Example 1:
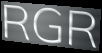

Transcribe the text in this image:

RGR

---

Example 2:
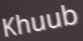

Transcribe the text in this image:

Khuub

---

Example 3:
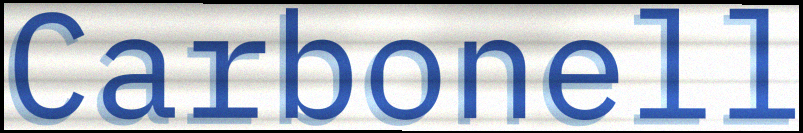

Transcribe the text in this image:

Carbonell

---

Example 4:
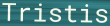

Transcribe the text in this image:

Tristis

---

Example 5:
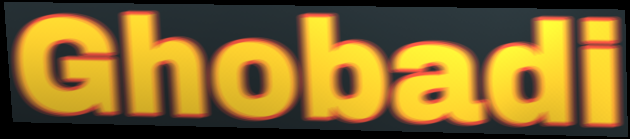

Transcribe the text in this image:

Ghobadi